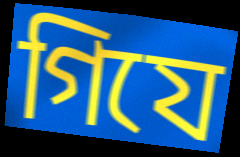
গিযে